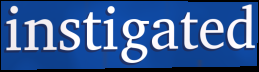
instigated